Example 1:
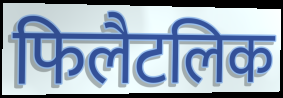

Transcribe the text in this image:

फिलैटलिक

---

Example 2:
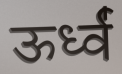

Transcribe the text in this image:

ऊर्ध्व॑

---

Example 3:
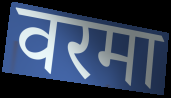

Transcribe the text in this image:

वरमा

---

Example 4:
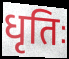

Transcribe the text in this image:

धृतिः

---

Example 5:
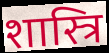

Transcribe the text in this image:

शास्त्रि